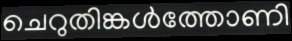
ചെറുതിങ്കൾത്തോണി